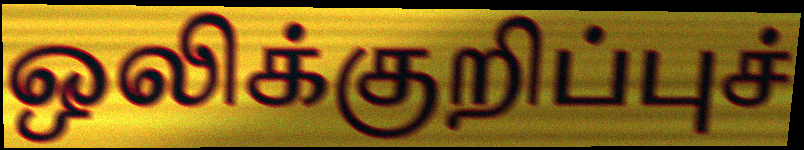
ஒலிக்குறிப்புச்